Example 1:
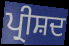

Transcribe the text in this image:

ਪ੍ਰ੍ਰੀਸ਼ਦ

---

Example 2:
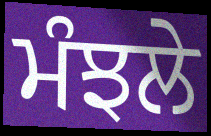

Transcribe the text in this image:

ਮੰਝਲੇ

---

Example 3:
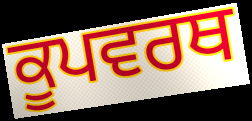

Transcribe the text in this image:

ਕੂਪਵਰਥ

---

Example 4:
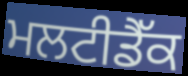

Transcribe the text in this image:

ਮਲਟੀਡੈੱਕ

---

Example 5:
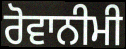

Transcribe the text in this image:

ਰੋਵਾਨੀਮੀ